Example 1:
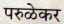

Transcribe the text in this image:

परुळेकर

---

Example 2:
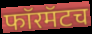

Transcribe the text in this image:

फॉरमॅटच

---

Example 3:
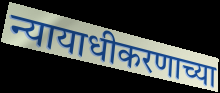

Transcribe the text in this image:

न्यायाधीकरणाच्या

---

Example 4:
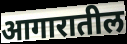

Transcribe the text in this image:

आगारातील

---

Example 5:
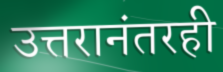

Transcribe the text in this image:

उत्तरानंतरही